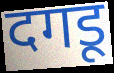
दगडू